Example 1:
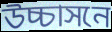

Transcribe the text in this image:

উচ্চাসনে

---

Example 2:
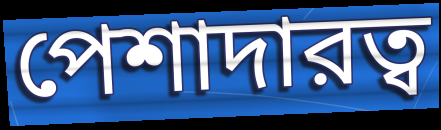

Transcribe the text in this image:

পেশাদারত্ব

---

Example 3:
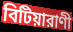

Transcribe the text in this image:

বিটিয়ারাণী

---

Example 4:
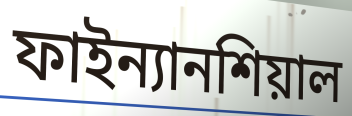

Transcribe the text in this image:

ফাইন্যানশিয়াল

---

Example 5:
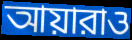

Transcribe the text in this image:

আয়ারাও